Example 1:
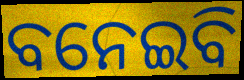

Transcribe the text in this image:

ବନେଇବି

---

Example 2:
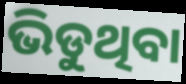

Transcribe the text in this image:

ଭିଡୁଥିବା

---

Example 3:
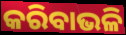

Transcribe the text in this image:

କରିବାଭଳି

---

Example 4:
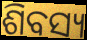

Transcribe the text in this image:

ଶିବସ୍ଯ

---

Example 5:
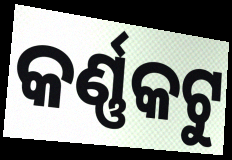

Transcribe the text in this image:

କର୍ଣ୍ଣକଟୁ